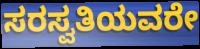
ಸರಸ್ವತಿಯವರೇ